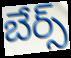
బేర్స్